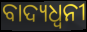
ବାଦ୍ୟଧ୍ୱନୀ